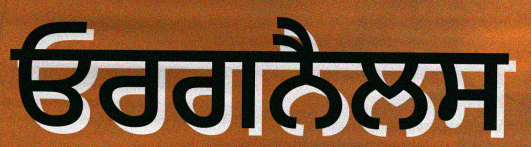
ਓਰਗਨੈਲਸ